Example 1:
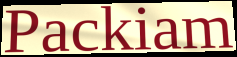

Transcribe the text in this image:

Packiam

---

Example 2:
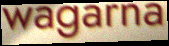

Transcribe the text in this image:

wagarna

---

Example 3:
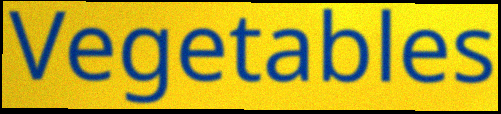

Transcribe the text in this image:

Vegetables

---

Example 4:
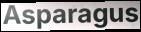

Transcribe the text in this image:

Asparagus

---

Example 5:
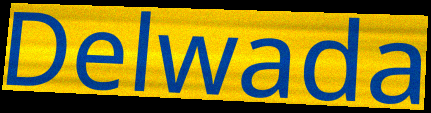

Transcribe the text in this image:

Delwada